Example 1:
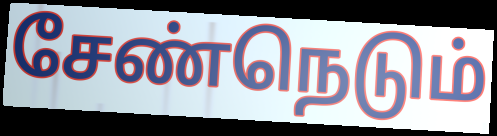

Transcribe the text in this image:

சேண்நெடும்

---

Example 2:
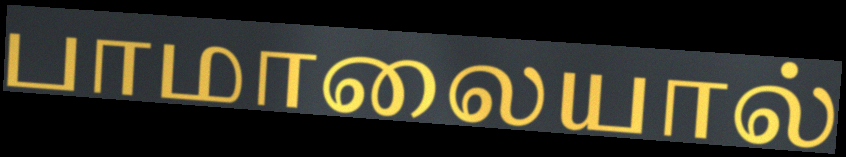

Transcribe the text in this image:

பாமாலையால்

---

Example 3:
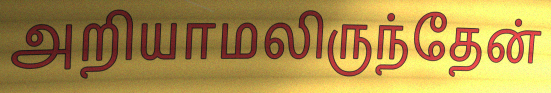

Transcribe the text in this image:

அறியாமலிருந்தேன்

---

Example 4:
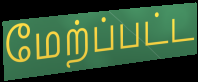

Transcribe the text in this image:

மேற்ப்பட்ட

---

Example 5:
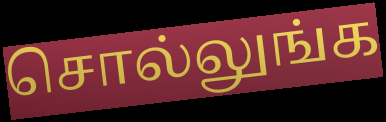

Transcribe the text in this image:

சொல்லுங்க